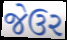
જેઉર